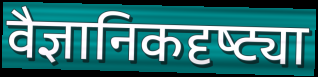
वैज्ञानिकदृष्ट्या